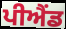
ਪੀਐਂਡ